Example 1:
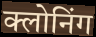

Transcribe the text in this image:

क्लोनिंग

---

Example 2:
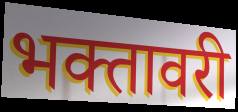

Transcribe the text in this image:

भक्तावरी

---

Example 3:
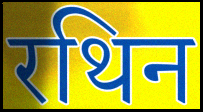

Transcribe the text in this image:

रथिन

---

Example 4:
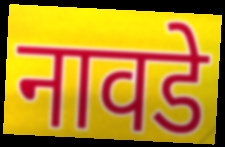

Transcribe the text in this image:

नावडे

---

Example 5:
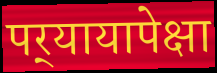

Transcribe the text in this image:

पर्यायापेक्षा